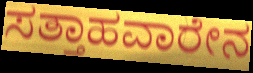
ಸತ್ತಾಹವಾರೇನ